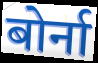
बोर्ना